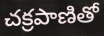
చక్రపాణితో